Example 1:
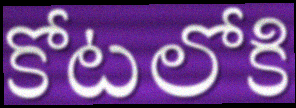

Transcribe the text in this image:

కోటలోకి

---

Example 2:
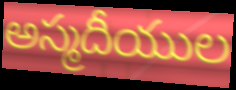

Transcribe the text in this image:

అస్మదీయుల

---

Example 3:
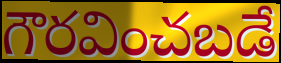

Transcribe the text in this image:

గౌరవించబడే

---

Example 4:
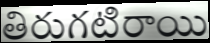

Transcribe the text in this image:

తిరుగటిరాయి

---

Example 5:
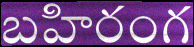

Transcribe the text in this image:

బహిరంగ